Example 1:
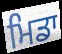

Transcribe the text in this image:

ਮਿਡਾ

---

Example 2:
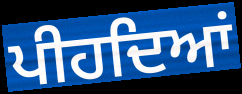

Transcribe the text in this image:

ਪੀਹਦਿਆਂ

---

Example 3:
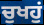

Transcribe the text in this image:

ਚੁਖਹੁਂ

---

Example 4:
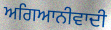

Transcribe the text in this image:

ਅਗਿਆਨੀਵਾਦੀ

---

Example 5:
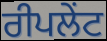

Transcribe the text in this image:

ਰੀਪਲੇਂਟ